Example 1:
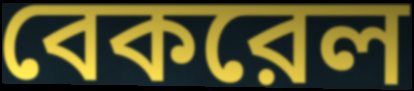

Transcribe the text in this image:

বেকরেল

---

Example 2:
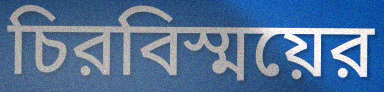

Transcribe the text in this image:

চিরবিস্ময়ের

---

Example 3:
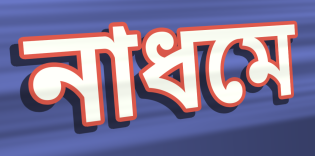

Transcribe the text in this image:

নাধমে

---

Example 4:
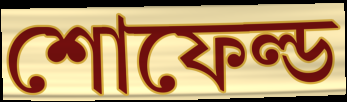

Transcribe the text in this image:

শোফেল্ড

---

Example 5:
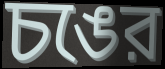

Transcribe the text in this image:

চঙের